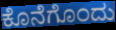
ಕೊನೆಗೊಂದು